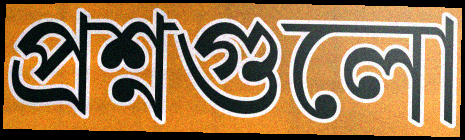
প্রশ্নগুলো